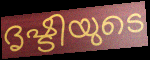
ദൃഷ്ടിയുടെ